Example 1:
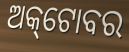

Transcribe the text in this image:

ଅକ୍‌ଟୋବର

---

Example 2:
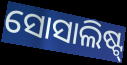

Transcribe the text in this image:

ସୋସାଲିଷ୍ଟ୍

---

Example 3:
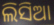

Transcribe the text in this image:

ଲିସିଆ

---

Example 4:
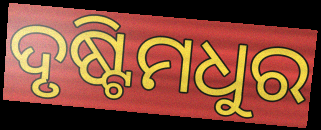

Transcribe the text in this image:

ଦୃଷ୍ଟିମଧୁର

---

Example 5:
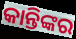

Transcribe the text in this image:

କାନ୍ତିଙ୍କର